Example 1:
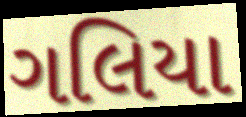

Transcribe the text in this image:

ગલિયા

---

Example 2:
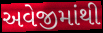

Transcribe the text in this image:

અવેજીમાંથી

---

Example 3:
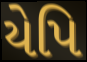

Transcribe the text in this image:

યેપિ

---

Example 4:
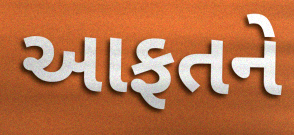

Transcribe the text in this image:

આફતને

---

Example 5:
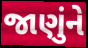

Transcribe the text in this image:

જાણુંને